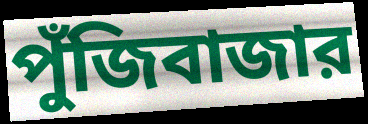
পুঁজিবাজার